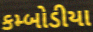
કમ્બોડીયા